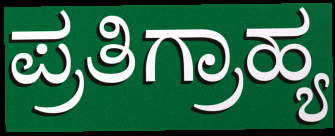
ಪ್ರತಿಗ್ರಾಹ್ಯ